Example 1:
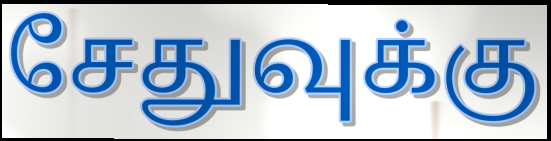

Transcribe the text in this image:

சேதுவுக்கு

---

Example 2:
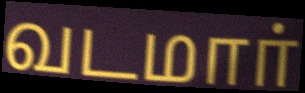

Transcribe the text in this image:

வடமார்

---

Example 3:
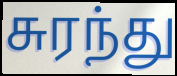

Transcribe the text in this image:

சுரந்து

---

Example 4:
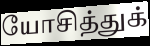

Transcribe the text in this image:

யோசித்துக்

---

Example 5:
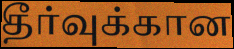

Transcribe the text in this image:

தீர்வுக்கான